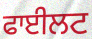
ਫਾਈਲਟ